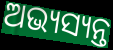
ଅଭ୍ୟସ୍ୟନ୍ତ